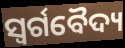
ସ୍ୱର୍ଗବୈଦ୍ୟ